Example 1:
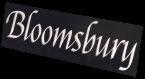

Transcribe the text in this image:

Bloomsbury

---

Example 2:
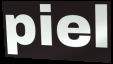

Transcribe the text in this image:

piel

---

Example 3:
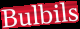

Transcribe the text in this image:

Bulbils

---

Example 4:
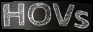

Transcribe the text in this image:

HOVs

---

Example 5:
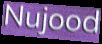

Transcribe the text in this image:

Nujood